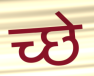
च्छे